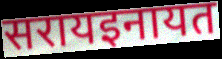
सरायइनायत